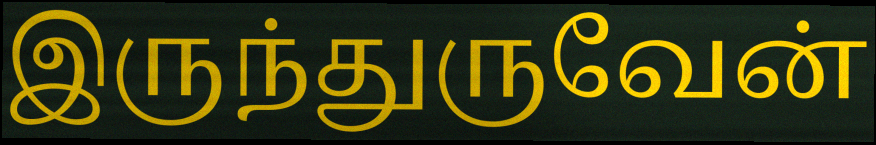
இருந்துருவேன்